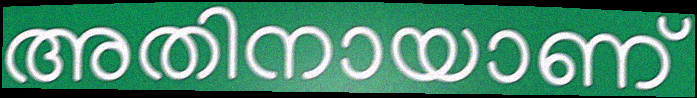
അതിനായാണ്